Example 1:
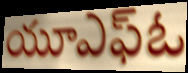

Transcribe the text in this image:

యూఎఫ్ఓ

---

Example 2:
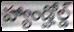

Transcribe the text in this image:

హ్యాండ్హోల్డ్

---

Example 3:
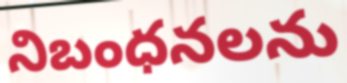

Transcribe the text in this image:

నిబంధనలను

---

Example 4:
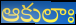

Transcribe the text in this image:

ఆకులాః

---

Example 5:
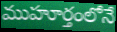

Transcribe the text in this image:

ముహూర్తంలోనే